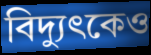
বিদ্যুৎকেও